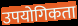
उपयोगिकता